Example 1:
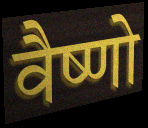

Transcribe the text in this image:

वैष्‍णो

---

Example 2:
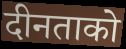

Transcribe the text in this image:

दीनताको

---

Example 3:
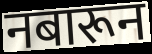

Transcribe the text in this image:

नबारून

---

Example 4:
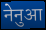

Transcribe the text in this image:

नेनुआ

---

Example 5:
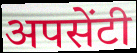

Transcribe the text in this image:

अपसेंटी